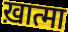
ख़ात्मा